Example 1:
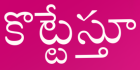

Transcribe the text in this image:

కొట్టేస్తూ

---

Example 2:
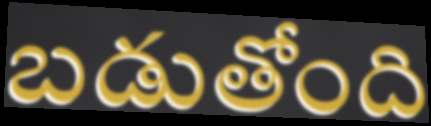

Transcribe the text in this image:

బడుతోంది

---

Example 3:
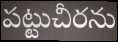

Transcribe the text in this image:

పట్టుచీరను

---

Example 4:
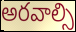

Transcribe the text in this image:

అరవాల్సి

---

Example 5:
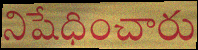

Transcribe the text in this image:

నిషేధించారు